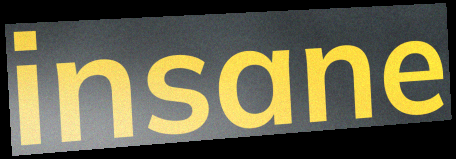
insane